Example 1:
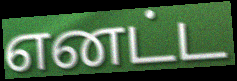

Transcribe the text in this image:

எனட்ட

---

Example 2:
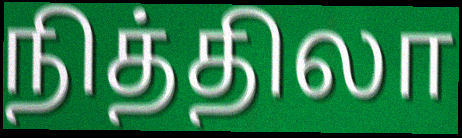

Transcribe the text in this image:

நித்திலா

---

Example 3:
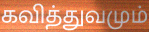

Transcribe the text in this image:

கவித்துவமும்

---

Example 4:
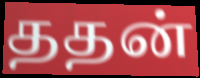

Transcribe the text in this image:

ததன்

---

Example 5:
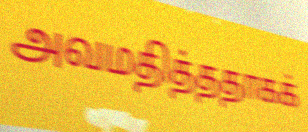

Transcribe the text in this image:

அவமதித்ததாகக்